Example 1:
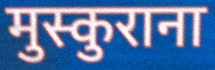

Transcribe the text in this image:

मुस्कुराना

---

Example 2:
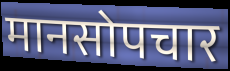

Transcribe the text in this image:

मानसोपचार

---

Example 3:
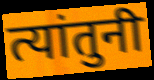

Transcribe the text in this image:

त्यांतुनी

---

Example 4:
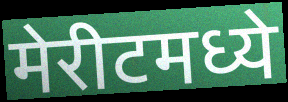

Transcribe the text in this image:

मेरीटमध्ये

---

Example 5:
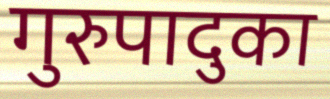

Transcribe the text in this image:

गुरुपादुका